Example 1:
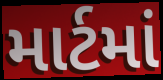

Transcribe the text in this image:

માર્ટમાં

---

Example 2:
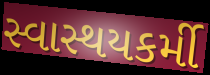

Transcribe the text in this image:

સ્વાસ્થયકર્મી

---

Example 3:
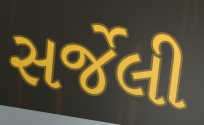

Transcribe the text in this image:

સર્જેલી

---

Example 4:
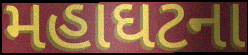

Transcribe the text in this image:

મહાઘટના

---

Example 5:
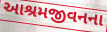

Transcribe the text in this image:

આશ્રમજીવનના